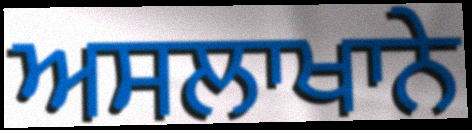
ਅਸਲਾਖਾਨੇ